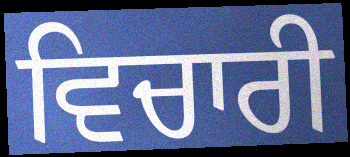
ਵਿਚਾਰੀ